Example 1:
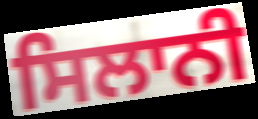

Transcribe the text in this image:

ਸਿਲਾਨੀ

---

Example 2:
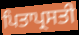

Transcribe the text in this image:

ਪਿਤਾਪ੍ਰਸਤੀ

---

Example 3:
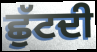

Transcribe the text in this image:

ਛੁੱਟਦੀ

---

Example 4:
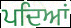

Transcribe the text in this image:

ਪਦਿਆਂ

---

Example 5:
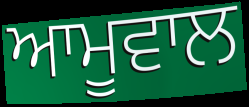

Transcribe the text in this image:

ਆਮੂਵਾਲ